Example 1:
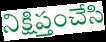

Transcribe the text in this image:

నిక్షిప్తంచేసి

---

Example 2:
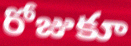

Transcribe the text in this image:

రోజుకూ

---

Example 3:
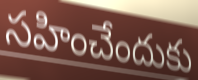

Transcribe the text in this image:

సహించేందుకు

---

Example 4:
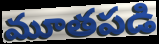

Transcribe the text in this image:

మూతపడి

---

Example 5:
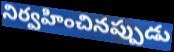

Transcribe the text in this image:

నిర్వహించినప్పుడు